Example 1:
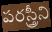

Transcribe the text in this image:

పరస్త్రీని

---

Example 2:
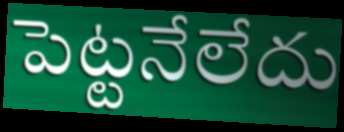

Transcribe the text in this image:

పెట్టనేలేదు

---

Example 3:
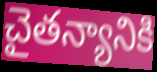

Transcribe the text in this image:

చైతన్యానికి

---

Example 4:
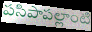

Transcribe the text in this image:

పసిపాపల్లాంటి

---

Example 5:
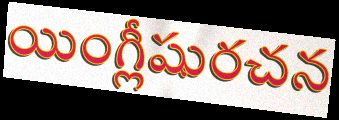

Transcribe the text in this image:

యింగ్లీషురచన